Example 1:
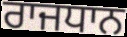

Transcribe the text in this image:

ਰਾਜਧਾਨ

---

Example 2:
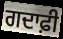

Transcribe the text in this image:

ਗਦਾਫ਼ੀ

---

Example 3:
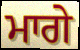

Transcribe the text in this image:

ਮਾਗੇ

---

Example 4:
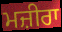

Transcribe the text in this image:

ਮਜ਼ੀਰਾ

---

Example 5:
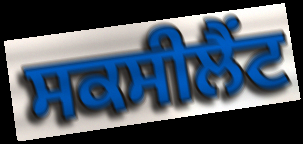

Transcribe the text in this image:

ਸਕਸੀਲੈਂਟ